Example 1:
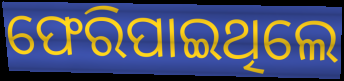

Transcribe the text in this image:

ଫେରିପାଇଥିଲେ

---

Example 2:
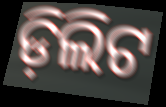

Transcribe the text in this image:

ଡ଼ିଲିଟ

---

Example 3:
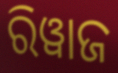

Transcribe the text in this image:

ରିୱାଜ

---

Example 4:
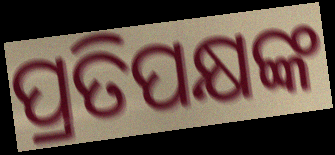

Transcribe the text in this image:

ପ୍ରତିପକ୍ଷଙ୍କ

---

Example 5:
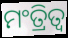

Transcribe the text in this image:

ମଂତ୍ରିତ୍ୱ